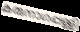
കരുനാഗപ്പള്ളി